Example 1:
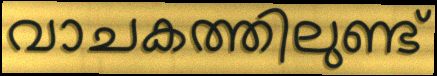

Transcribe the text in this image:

വാചകത്തിലുണ്ട്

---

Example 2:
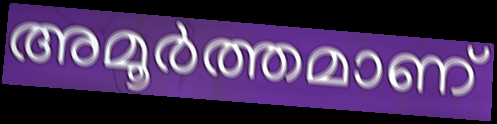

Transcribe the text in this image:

അമൂർത്തമാണ്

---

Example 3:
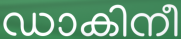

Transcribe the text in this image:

ഡാകിനീ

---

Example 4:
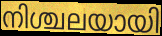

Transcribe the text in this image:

നിശ്ചലയായി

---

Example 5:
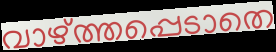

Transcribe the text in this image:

വാഴ്ത്തപ്പെടാതെ